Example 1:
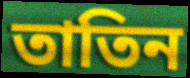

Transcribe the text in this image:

তাতিন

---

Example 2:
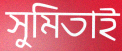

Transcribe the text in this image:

সুমিতাই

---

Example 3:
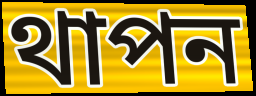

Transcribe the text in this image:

থাপন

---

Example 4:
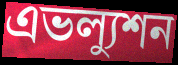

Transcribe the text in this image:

এভল্যুশন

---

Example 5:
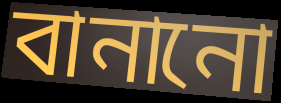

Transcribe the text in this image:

বানানো